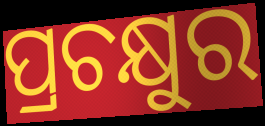
ପ୍ରଚକ୍ଷୁର